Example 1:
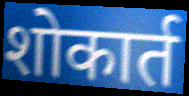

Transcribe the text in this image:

शोकार्त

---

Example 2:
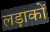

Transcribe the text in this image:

लड़ाकों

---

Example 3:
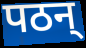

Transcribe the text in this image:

पठन्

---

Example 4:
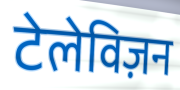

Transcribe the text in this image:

टेलेविज़न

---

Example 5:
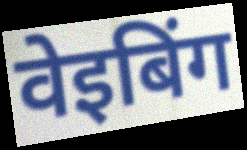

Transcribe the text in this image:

वेइबिंग